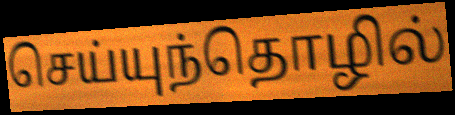
செய்யுந்தொழில்